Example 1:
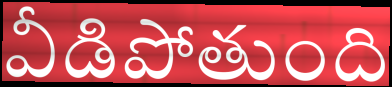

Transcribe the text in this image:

వీడిపోతుంది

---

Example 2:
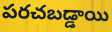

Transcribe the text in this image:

పరచబడ్డాయి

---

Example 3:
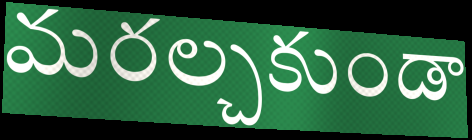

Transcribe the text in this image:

మరల్చకుండా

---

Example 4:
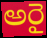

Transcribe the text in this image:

అరై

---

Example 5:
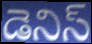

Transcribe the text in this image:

డెనిస్